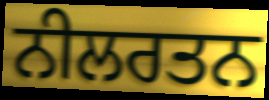
ਨੀਲਰਤਨ